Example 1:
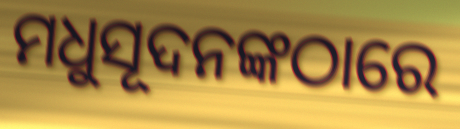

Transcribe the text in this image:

ମଧୁସୂଦନଙ୍କଠାରେ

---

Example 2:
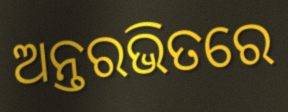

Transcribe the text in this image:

ଅନ୍ତରଭିତରେ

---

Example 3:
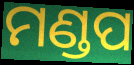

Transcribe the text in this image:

ମଣ୍ଡପ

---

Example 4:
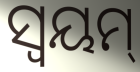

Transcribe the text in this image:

ସ୍ୱୟମ୍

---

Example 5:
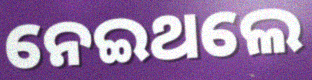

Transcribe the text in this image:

ନେଇଥଲେ